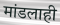
मांडलाही